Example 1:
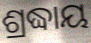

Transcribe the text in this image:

ଶ୍ରଦ୍ଧାୟ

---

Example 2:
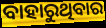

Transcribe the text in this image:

ବାହାରୁଥିବାର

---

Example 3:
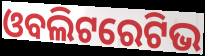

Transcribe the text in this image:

ଓବଲିଟରେଟିଭ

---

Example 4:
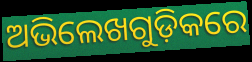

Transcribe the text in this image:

ଅଭିଲେଖଗୁଡ଼ିକରେ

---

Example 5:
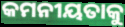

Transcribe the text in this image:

କମନୀୟତାକୁ